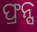
ଫ୍ରନ୍ସ